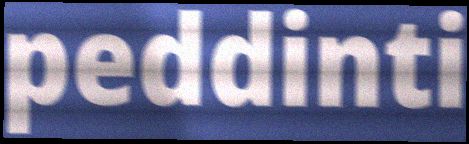
peddinti